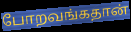
போறவங்கதான்